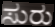
ಸುರು